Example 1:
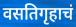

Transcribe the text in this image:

वसतिगृहाचं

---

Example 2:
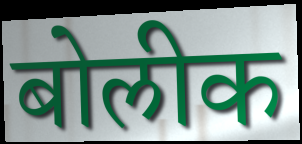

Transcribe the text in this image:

बोलीक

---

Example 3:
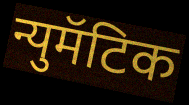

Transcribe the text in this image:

न्युमॅटिक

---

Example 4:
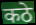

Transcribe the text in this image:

कठे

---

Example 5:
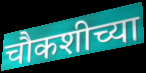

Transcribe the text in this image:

चौकशीच्या